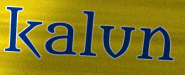
kalun